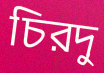
চিরদু